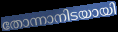
തോന്നാനിടയായി